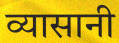
व्यासानी